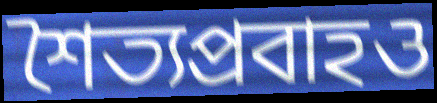
শৈত্যপ্রবাহও